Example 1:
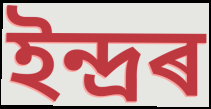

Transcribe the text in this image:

ইন্দ্ৰৰ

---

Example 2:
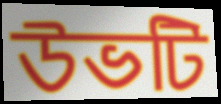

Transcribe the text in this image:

উভটি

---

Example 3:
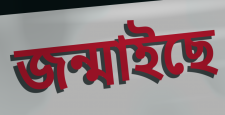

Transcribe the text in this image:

জন্মাইছে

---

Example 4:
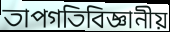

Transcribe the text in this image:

তাপগতিবিজ্ঞানীয়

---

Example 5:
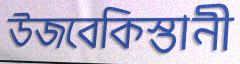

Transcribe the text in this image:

উজবেকিস্তানী